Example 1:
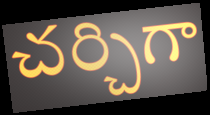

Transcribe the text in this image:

చర్చిగా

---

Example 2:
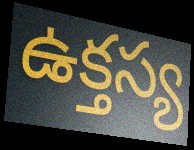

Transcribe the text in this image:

ఉక్తస్య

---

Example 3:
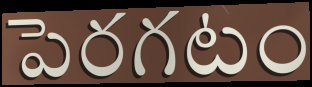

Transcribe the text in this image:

పెరగటం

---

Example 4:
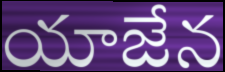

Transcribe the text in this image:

యాజేన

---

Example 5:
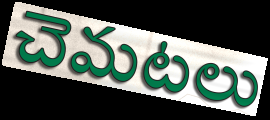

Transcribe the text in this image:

చెమటలు